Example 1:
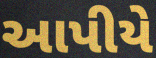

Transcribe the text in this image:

આપીયે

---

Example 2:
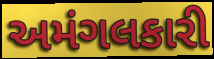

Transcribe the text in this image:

અમંગલકારી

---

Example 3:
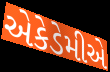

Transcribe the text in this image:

એકેડેમીએ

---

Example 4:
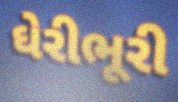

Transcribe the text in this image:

ઘેરીભૂરી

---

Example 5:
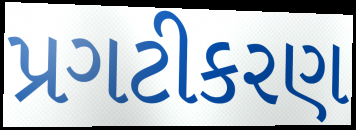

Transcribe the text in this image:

પ્રગટીકરણ